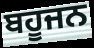
ਬਹੂਜਨ